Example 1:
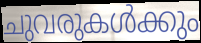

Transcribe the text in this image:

ചുവരുകൾക്കും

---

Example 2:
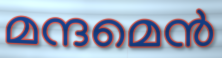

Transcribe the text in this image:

മന്ദമെൻ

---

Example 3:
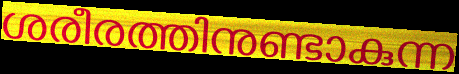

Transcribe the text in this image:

ശരീരത്തിനുണ്ടാകുന്ന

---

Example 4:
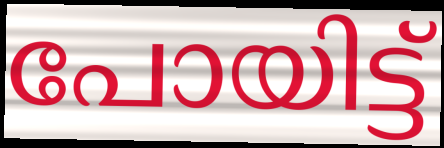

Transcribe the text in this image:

പോയിട്ട്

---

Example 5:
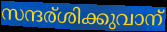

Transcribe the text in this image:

സന്ദര്ശിക്കുവാന്